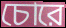
চোরে